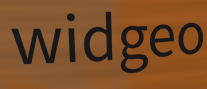
widgeo